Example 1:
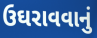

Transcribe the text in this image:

ઉઘરાવવાનું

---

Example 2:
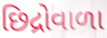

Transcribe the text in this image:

છિદ્રોવાળા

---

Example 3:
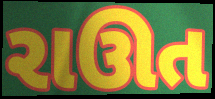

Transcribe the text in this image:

રાઊત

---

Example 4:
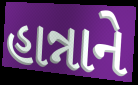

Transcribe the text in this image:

હાન્નાને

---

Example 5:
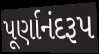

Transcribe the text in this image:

પૂર્ણાનંદરૂપ